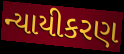
ન્યાયીકરણ